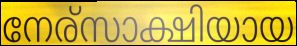
നേര്സാക്ഷിയായ